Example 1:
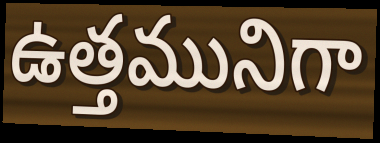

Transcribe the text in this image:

ఉత్తమునిగా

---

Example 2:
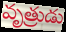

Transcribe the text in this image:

వృత్రుడు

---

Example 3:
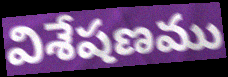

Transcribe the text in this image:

విశేషణము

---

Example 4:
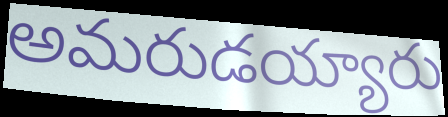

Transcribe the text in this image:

అమరుడయ్యారు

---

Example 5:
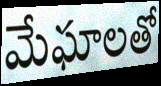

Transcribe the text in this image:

మేఘాలతో